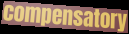
compensatory